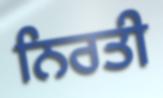
ਨਿਰਤੀ